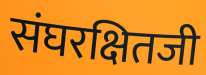
संघरक्षितजी